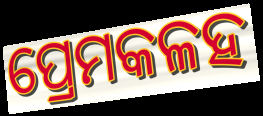
ପ୍ରେମକଳହ